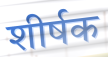
शीर्षक